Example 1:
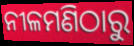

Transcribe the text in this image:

ନୀଳମଣିଠାରୁ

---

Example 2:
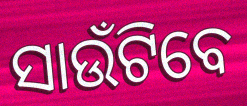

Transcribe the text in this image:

ସାଉଁଟିବେ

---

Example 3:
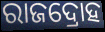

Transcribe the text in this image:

ରାଜଦ୍ରୋହ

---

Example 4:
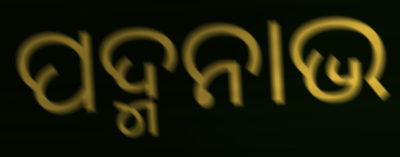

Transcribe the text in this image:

ପଦ୍ମନାଭ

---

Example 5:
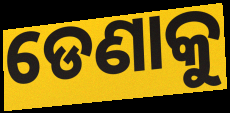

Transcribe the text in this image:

ଡେଣାକୁ